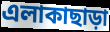
এলাকাছাড়া